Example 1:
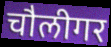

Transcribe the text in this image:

चौलीगर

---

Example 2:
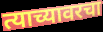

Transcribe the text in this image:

त्याच्यावरचा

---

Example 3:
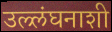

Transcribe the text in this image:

उल्लंघनाशी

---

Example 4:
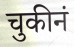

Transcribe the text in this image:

चुकीनं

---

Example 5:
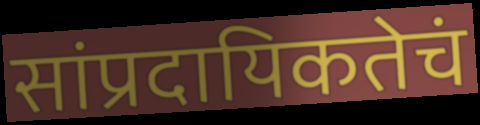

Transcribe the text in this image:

सांप्रदायिकतेचं